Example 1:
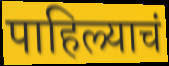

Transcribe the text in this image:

पाहिल्याचं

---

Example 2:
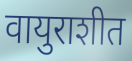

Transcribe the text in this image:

वायुराशीत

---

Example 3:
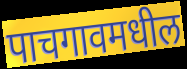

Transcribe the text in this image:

पाचगावमधील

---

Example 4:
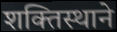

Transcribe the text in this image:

शक्तिस्थाने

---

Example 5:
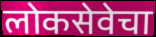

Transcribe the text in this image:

लोकसेवेचा